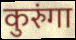
कुरुंगा